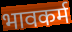
भावकर्म